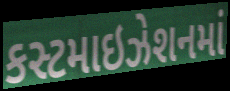
કસ્ટમાઇઝેશનમાં